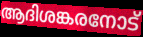
ആദിശങ്കരനോട്